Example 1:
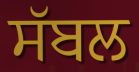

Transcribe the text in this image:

ਸੱਬਲ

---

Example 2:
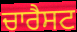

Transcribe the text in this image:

ਚਾਰੈਸਟ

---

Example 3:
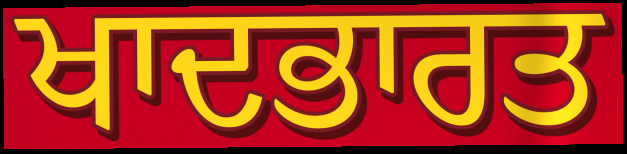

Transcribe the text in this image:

ਖਾਦਭਾਰਤ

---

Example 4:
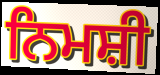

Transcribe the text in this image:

ਨਿਮਸ਼ੀ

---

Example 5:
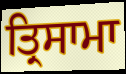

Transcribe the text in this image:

ਤ੍ਰਿਸਾਮਾ